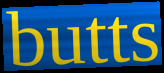
butts